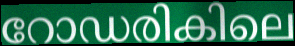
റോഡരികിലെ